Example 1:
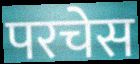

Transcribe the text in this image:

परचेस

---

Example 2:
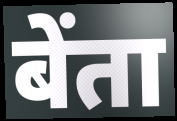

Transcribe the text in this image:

बेंता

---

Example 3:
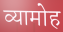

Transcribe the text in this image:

व्यामोह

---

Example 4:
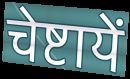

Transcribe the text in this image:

चेष्टायें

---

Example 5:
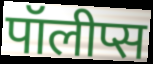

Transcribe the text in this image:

पॉलीप्स